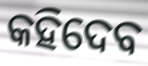
କହିଦେବ